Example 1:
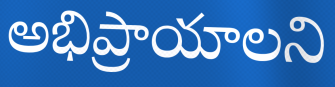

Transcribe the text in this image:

అభిప్రాయాలని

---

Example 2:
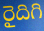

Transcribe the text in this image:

రైదిగి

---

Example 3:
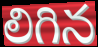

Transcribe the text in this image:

లిగిన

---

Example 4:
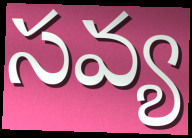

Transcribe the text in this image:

సవ్య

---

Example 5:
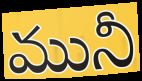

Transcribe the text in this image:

మునీ